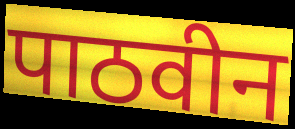
पाठवीन